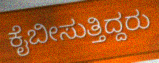
ಕೈಬೀಸುತ್ತಿದ್ದರು